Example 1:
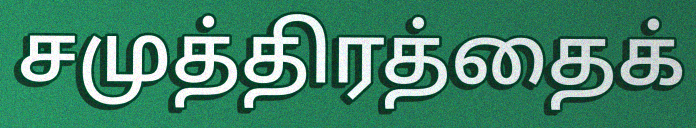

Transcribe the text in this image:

சமுத்திரத்தைக்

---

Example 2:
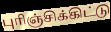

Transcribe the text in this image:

புரிஞ்சிக்கிட்டு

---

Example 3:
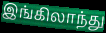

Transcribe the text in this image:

இங்கிலாந்து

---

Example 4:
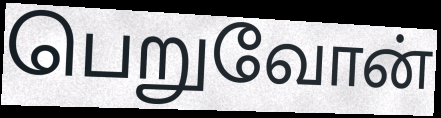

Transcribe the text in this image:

பெறுவோன்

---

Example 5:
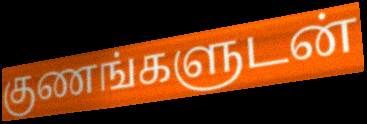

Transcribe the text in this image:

குணங்களுடன்